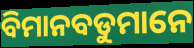
ବିମାନବଡୁମାନେ